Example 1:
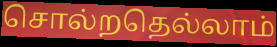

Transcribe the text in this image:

சொல்றதெல்லாம்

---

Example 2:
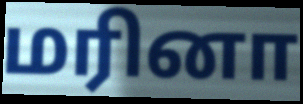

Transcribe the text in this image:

மரினா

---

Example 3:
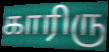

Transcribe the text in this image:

காரிரு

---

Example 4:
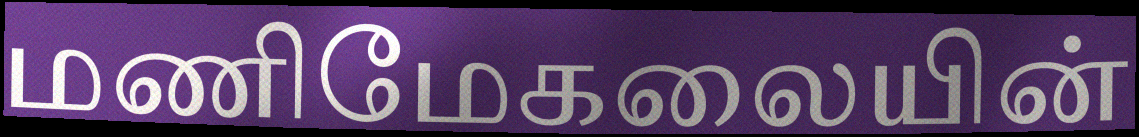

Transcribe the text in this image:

மணிமேகலையின்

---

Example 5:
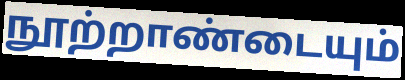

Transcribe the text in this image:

நூற்றாண்டையும்